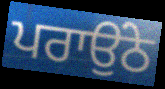
ਪਰਾਉਂਠੇ